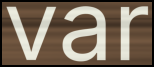
var